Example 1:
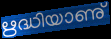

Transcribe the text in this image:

ഋദ്ധിയാണു്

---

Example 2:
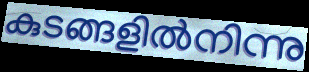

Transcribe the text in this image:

കുടങ്ങളിൽനിന്നു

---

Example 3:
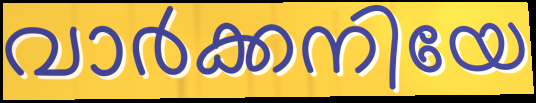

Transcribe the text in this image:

വാർക്കനിയേ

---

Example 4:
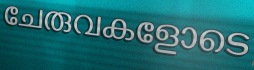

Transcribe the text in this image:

ചേരുവകളോടെ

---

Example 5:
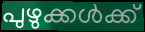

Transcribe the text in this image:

പുഴുക്കൾക്ക്